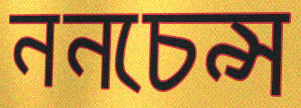
ননচেন্স